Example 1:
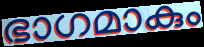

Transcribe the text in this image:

ഭാഗമാകും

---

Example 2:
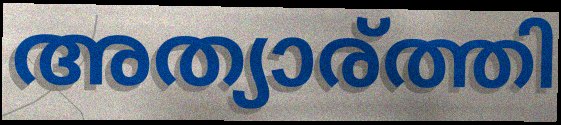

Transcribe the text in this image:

അത്യാര്ത്തി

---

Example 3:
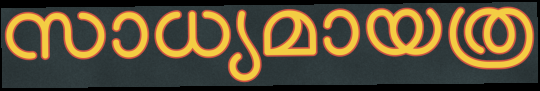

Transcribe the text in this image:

സാധ്യമായത്ര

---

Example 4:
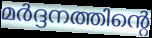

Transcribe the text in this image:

മർദ്ദനത്തിന്റെ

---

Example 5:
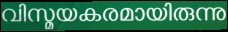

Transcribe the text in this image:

വിസ്മയകരമായിരുന്നു